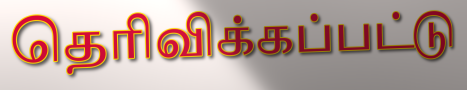
தெரிவிக்கப்பட்டு